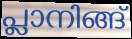
പ്ലാനിങ്ങ്